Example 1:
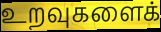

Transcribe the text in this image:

உறவுகளைக்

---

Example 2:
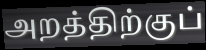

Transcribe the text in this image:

அறத்திற்குப்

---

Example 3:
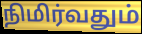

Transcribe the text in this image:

நிமிர்வதும்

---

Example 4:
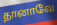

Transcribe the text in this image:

தானாவே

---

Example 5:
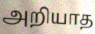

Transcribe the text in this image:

அறியாத